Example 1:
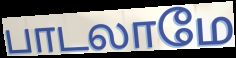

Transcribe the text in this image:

பாடலாமே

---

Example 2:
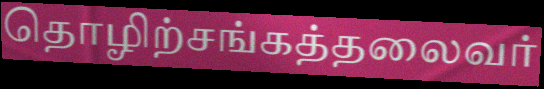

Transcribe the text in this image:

தொழிற்சங்கத்தலைவர்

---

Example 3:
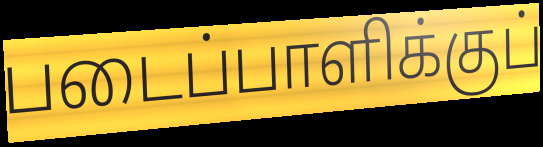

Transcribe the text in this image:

படைப்பாளிக்குப்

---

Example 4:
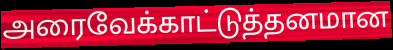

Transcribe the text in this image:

அரைவேக்காட்டுத்தனமான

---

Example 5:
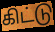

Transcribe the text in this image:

கிட்டு